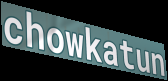
chowkatun